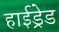
हाईड्रेड